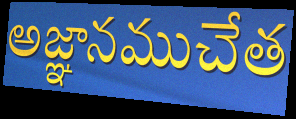
అజ్ఞానముచేత